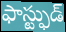
ఫాస్ట్ఫుడ్